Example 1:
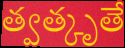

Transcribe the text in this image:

త్వత్కృతే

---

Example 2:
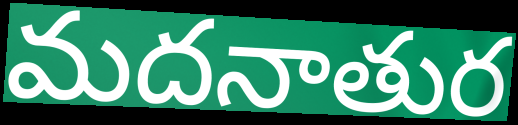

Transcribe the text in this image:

మదనాతుర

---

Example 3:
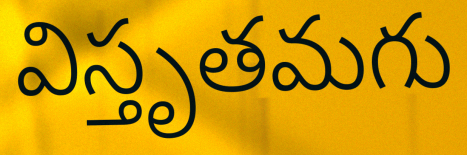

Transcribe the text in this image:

విస్తృతమగు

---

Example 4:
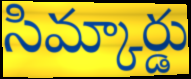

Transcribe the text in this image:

సిమ్కార్డు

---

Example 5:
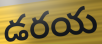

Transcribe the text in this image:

డరయ